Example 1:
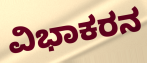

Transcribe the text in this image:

ವಿಭಾಕರನ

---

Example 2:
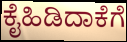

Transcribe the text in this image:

ಕೈಹಿಡಿದಾಕೆಗೆ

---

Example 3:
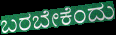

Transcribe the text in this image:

ಬರಬೇಕೆಂದು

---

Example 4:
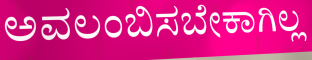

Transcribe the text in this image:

ಅವಲಂಬಿಸಬೇಕಾಗಿಲ್ಲ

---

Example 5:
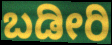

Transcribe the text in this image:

ಬಡೀರಿ